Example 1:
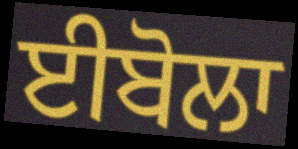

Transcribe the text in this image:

ਈਬੋਲਾ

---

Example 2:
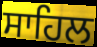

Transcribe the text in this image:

ਸਾਹਿਲ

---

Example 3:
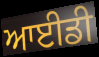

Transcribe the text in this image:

ਆਈਡੀ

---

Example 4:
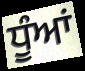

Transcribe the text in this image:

ਧੂੰਆਂ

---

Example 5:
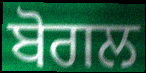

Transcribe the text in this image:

ਬੋਗਲ